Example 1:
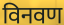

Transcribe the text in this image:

विनवण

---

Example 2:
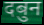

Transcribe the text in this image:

दबुन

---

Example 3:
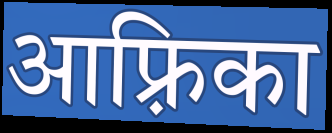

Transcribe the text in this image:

आफ़्रिका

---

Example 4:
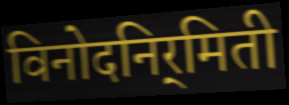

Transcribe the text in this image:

विनोदनिर्मिती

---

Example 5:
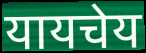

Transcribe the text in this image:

यायचेय